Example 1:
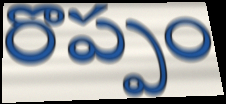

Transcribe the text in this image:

రొప్పం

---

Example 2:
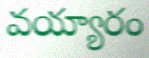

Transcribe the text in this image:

వయ్యారం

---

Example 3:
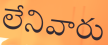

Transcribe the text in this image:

లేనివారు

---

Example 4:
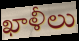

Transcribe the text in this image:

ఖాళీలు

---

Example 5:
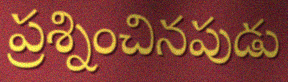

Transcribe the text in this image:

ప్రశ్నించినపుడు